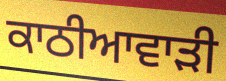
ਕਾਠੀਆਵਾੜੀ